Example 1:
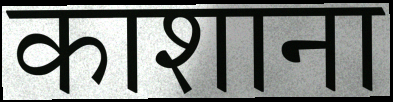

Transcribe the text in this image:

काशाना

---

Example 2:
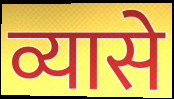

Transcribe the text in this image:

व्यासे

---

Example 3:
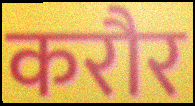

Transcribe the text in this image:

करौर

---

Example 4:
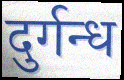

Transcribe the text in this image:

दुर्गन्ध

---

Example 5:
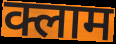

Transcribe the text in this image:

क्लाम